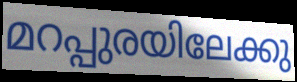
മറപ്പുരയിലേക്കു